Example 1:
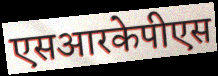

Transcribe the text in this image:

एसआरकेपीएस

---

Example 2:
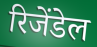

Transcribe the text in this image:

रिजेंडेल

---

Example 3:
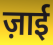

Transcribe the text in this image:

ज़ाई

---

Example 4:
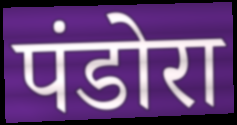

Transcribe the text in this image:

पंडोरा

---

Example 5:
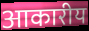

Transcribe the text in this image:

आकारीय